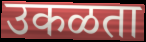
उकळता